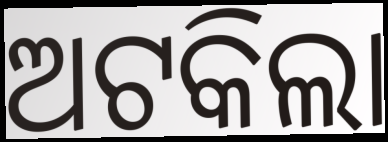
ଅଟକିଲା